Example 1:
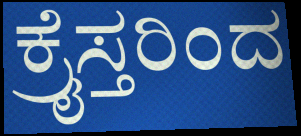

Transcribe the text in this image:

ಕ್ರೈಸ್ತರಿಂದ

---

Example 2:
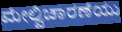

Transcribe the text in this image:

ಮೇಲ್ವಿಚಾರಣೆಯು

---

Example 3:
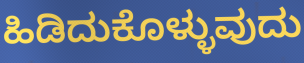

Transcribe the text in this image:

ಹಿಡಿದುಕೊಳ್ಳುವುದು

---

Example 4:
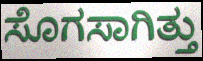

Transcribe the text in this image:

ಸೊಗಸಾಗಿತ್ತು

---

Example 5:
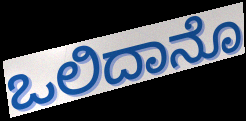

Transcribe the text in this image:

ಒಲಿದಾನೊ